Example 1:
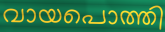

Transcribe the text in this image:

വായപൊത്തി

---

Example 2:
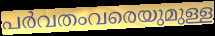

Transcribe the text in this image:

പർവതംവരെയുമുള്ള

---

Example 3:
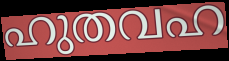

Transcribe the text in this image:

ഹുതവഹ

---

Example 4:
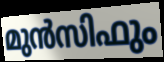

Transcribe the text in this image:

മുൻസിഫും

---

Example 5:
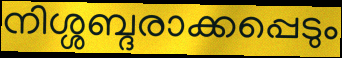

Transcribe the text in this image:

നിശ്ശബ്ദരാക്കപ്പെടും